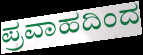
ಪ್ರವಾಹದಿಂದ